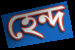
হেন্দ